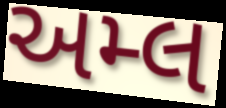
અમ્લ